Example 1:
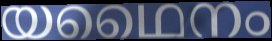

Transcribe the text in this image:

യഥൈനം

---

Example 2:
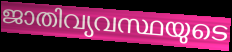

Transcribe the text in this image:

ജാതിവ്യവസ്ഥയുടെ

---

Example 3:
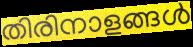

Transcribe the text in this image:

തിരിനാളങ്ങൾ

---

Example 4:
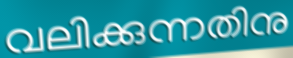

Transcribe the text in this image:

വലിക്കുന്നതിനു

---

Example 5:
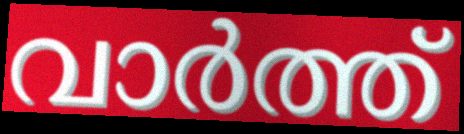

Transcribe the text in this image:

വാർത്ത്